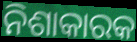
ନିଶାକାରକ